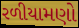
રળીયામણો